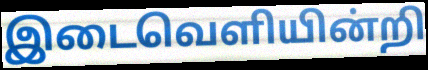
இடைவெளியின்றி